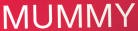
MUMMY